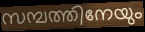
സമ്പത്തിനേയും